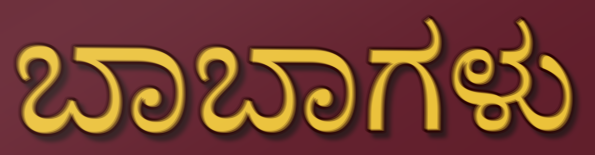
ಬಾಬಾಗಳು